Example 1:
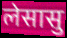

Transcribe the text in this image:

लेसासु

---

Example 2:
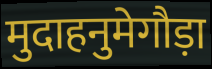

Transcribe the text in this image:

मुदाहनुमेगौड़ा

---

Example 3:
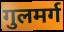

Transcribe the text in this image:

गुलमर्ग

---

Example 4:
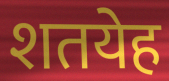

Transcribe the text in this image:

शतयेह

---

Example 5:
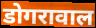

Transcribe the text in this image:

डोगरावाल